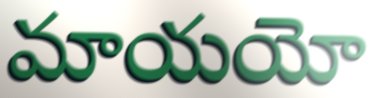
మాయయో